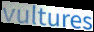
vultures